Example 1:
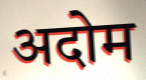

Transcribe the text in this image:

अदोम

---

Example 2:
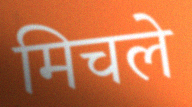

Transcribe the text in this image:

मिचले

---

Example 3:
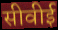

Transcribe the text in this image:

सीवीई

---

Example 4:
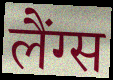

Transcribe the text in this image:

लैंग्स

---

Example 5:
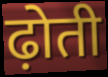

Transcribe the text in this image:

ढ़ोती